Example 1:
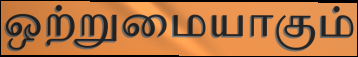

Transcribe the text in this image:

ஒற்றுமையாகும்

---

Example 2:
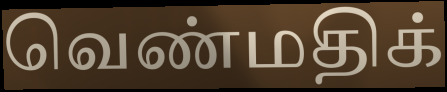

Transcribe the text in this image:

வெண்மதிக்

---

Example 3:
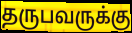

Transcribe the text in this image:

தருபவருக்கு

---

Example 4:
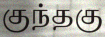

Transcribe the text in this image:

குந்தகு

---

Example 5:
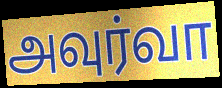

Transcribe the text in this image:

அவுர்வா